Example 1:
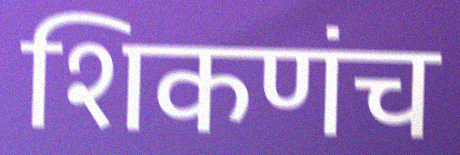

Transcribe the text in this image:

शिकणंच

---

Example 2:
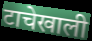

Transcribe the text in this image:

टाचेखाली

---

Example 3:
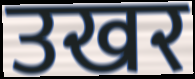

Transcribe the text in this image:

उखर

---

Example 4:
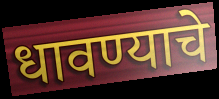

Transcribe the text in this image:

धावण्याचे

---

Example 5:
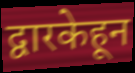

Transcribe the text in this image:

द्वारकेहून